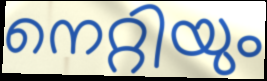
നെറ്റിയും